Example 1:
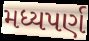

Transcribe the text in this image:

મધ્યપર્ણ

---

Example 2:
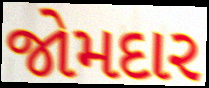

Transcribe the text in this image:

જોમદાર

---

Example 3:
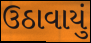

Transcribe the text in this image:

ઉઠાવાયું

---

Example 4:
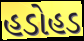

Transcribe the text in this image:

હડોહડ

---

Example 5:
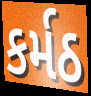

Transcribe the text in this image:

કર્મઠ